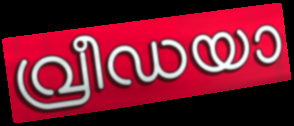
വ്രീഡയാ